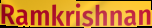
Ramkrishnan